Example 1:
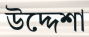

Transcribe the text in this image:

উদ্দেশা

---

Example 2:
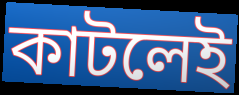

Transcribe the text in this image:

কাটলেই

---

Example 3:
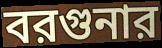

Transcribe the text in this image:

বরগুনার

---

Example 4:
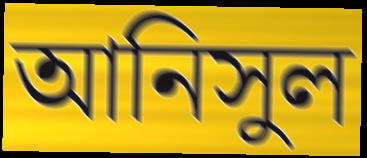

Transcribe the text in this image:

আনিসুল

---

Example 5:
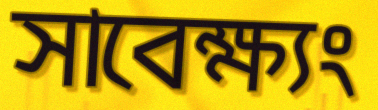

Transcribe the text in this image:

সাবেক্ষ্যং